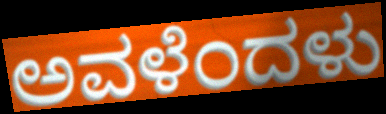
ಅವಳೆಂದಳು